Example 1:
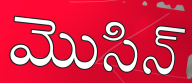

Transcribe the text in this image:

మొసిన్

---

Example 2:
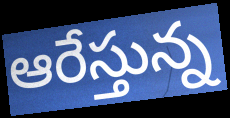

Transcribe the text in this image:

ఆరేస్తున్న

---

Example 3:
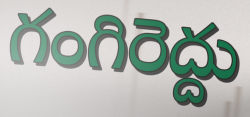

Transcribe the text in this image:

గంగిరెద్దు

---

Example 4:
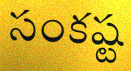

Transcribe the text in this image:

సంకష్ట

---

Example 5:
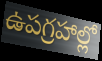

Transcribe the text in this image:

ఉపగ్రహాల్లో